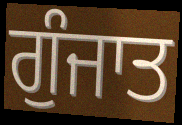
ਗੁੰਜਾਤ